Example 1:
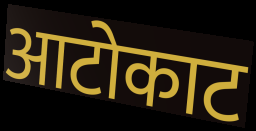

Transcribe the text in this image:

आटोकाट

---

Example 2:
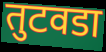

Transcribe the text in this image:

तुटवडा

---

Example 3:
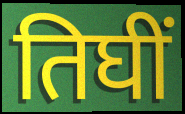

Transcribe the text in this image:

तिघीं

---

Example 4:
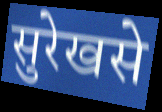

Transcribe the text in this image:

सुरेखसे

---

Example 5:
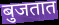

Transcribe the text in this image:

बुजतात